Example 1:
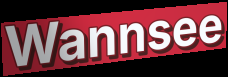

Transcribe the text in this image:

Wannsee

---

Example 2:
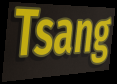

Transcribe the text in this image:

Tsang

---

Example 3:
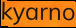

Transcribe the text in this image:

kyarno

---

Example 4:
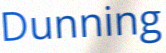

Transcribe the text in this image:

Dunning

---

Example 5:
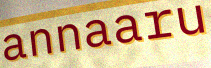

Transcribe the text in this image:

annaaru